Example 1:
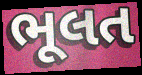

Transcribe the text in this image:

ભૂલત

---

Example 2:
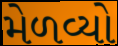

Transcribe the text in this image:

મેળવ્યો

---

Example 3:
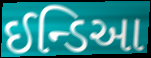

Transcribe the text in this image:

ઈન્ડિઆ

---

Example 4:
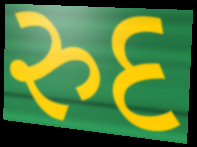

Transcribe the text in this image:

રુદ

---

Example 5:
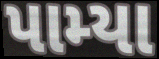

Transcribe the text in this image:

પામ્યા